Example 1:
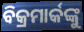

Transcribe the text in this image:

ବିକ୍ରମାର୍କଙ୍କୁ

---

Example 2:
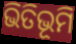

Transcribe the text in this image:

ଭିତିଭୂମି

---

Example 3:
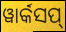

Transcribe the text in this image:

ୱାର୍କସପ୍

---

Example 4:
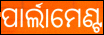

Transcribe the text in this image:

ପାର୍ଲାମେଣ୍ଟ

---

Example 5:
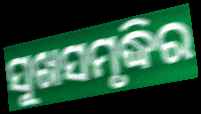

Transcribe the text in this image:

ସୁଖସମୃଦ୍ଧିର